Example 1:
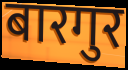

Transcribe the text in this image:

बारगुर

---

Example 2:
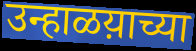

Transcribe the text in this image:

उन्हाळय़ाच्या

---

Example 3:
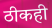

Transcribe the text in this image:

ठीकही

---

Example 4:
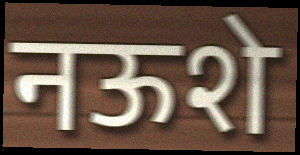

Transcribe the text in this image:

नऊशे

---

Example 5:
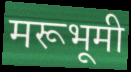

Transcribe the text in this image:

मरूभूमी